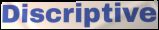
Discriptive